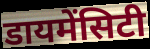
डायमेंसिटी